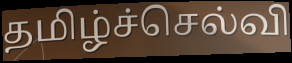
தமிழ்ச்செல்வி